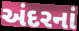
અંદરનાં